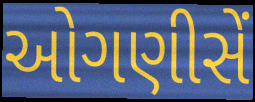
ઓગણીસેં